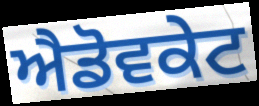
ਐਡੋਵਕੇਟ